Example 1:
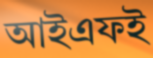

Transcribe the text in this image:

আইএফই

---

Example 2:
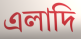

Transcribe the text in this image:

এলাদি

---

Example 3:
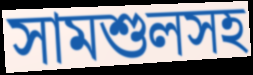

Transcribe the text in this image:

সামশুলসহ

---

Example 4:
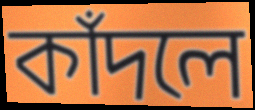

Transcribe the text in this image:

কাঁদলে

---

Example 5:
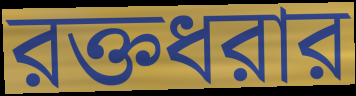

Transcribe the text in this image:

রক্তধরার